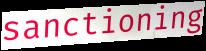
sanctioning